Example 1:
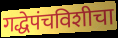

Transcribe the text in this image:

गद्धेपंचविशीचा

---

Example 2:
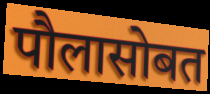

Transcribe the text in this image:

पौलासोबत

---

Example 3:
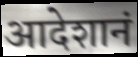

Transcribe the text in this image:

आदेशानं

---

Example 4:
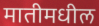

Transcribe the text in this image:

मातीमधील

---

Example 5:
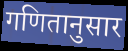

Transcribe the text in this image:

गणितानुसार